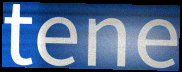
tene